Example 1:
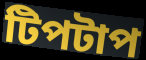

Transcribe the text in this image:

টিপটাপ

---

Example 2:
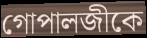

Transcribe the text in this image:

গোপালজীকে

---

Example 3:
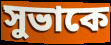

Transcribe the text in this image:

সুভাকে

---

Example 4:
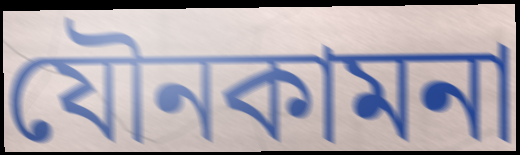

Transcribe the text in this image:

যৌনকামনা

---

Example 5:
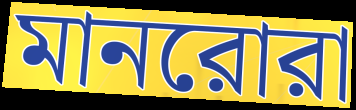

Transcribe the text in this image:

মানরোরা